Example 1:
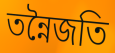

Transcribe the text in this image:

তন্নৈজতি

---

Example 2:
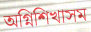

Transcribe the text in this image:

অগ্নিশিখাসম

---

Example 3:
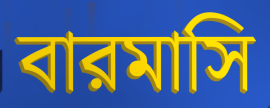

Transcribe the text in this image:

বারমাসি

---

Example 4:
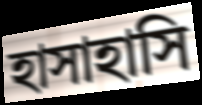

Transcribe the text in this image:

হাসাহাসি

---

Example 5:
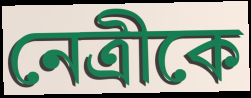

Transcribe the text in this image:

নেত্রীকে